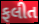
ફલીત